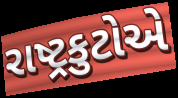
રાષ્ટ્રકુટોએ